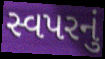
સ્વપરનું